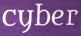
cyber